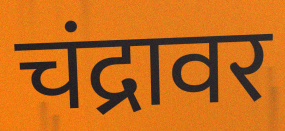
चंद्रावर